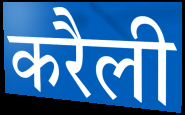
करैली